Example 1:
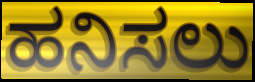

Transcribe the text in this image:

ಹನಿಸಲು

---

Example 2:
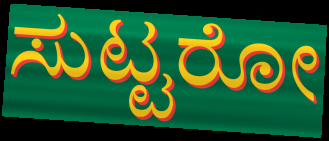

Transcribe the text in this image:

ಸುಟ್ಟರೋ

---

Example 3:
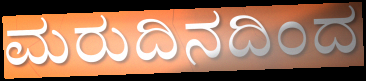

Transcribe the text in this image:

ಮರುದಿನದಿಂದ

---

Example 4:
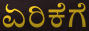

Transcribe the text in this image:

ಏರಿಕೆಗೆ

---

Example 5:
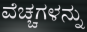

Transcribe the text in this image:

ವೆಚ್ಚಗಳನ್ನು